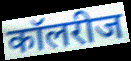
कॉलरीज